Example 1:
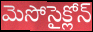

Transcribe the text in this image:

మెసోసైక్లోన్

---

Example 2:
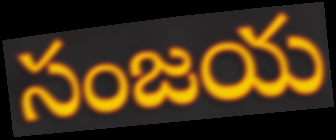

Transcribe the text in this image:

సంజయ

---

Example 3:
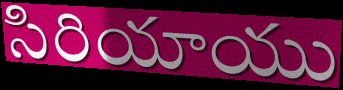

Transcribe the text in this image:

సిరియాయు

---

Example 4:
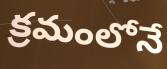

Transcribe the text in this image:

క్రమంలోనే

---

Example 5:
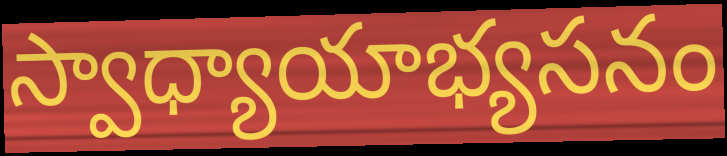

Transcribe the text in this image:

స్వాధ్యాయాభ్యసనం